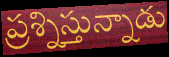
ప్రశ్నిస్తున్నాడు